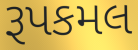
રૂપકમલ